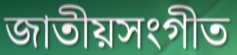
জাতীয়সংগীত